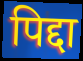
पिद्दा